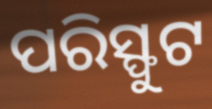
ପରିସ୍ଫୁଟ